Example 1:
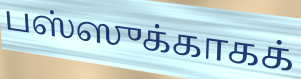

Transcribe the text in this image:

பஸ்ஸுக்காகக்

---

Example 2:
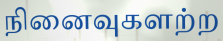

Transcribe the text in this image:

நினைவுகளற்ற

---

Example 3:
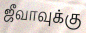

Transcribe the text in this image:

ஜீவாவுக்கு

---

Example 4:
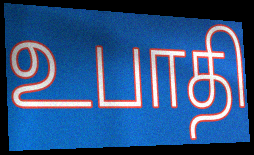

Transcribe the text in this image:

உபாதி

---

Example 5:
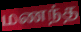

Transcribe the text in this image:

மணந்த